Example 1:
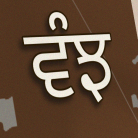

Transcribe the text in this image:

ਵੰਝ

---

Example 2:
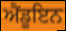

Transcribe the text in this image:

ਐਂਡੂਇਨ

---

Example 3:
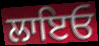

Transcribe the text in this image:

ਲਾਇਓ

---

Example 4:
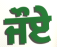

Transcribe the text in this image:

ਜੌਏ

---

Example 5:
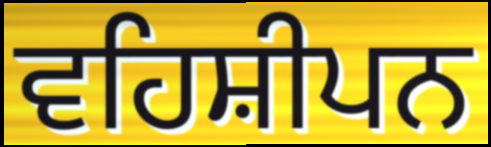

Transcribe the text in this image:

ਵਹਿਸ਼ੀਪਨ